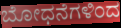
ಬೋಧನೆಗಳಿಂದ